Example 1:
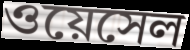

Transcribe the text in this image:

ওয়েসেল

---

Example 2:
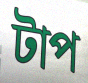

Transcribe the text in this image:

টাপ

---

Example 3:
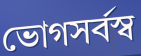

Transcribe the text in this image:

ভোগসর্বস্ব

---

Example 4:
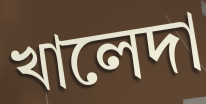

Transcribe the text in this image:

খালেদা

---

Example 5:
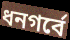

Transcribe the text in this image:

ধনগর্বে